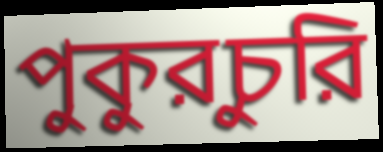
পুকুরচুরি